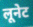
लूनेट